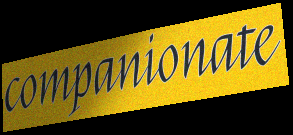
companionate